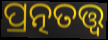
ପ୍ରତ୍ନତତ୍ତ୍ୱ